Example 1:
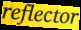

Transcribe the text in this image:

reflector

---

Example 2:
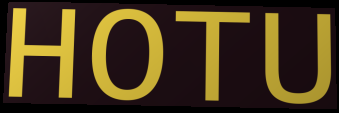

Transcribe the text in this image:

HOTU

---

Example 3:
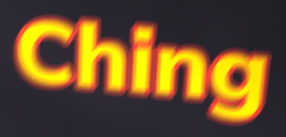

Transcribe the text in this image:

Ching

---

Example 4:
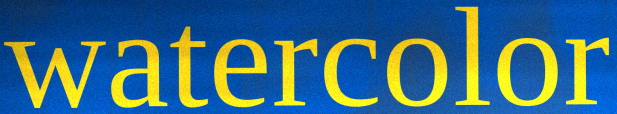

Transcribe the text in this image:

watercolor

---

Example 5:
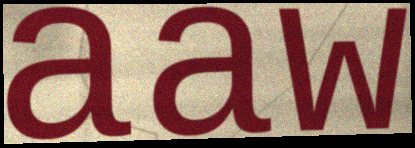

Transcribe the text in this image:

aaw